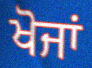
ਖੋਜਾਂ